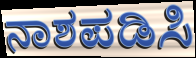
ನಾಶಪಡಿಸಿ